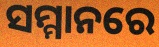
ସମ୍ମାନରେ